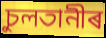
চুলতানীৰ